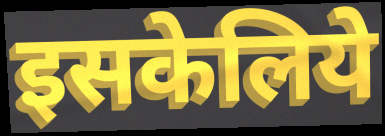
इसकेलिये